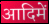
आदिमें